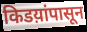
किडय़ांपासून